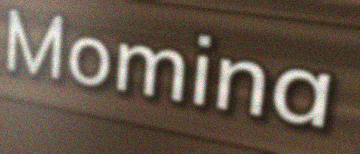
Momina